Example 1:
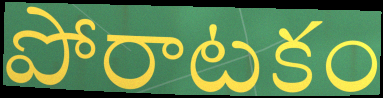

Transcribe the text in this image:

పోరాటకం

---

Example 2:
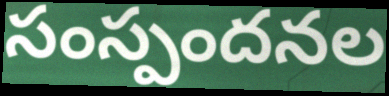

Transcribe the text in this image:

సంస్పందనల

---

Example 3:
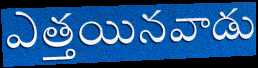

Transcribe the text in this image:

ఎత్తయినవాడు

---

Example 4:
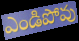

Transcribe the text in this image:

ఎండిపోవు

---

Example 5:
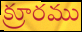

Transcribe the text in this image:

క్రూరము